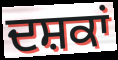
ਦਸ਼ਕਾਂ